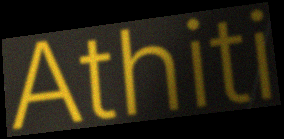
Athiti